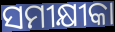
ସମୀକ୍ଷୀକା